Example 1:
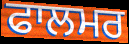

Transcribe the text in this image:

ਫਾਲਮਰ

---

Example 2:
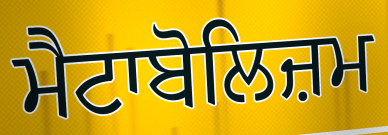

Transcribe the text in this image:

ਮੈਟਾਬੋਲਿਜ਼ਮ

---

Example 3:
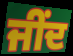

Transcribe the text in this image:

ਜੀਂਦ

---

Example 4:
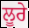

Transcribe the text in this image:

ਲੂਰੇ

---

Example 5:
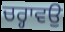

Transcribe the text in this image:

ਚਰ੍ਹਾਵਉ